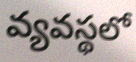
వ్యవస్థలో